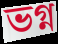
ভগ্ন